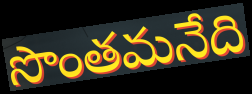
సొంతమనేది